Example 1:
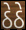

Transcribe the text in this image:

ઠેઠે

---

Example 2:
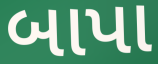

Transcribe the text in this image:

બાપા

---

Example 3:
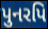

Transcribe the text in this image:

પુનરપિ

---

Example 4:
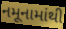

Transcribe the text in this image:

નમૂનામાંથી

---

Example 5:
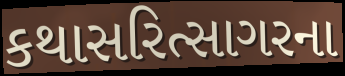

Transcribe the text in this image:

કથાસરિત્સાગરના